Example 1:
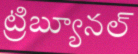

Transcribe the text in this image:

ట్రిబ్యూనల్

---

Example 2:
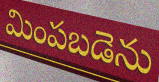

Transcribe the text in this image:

మింపబడెను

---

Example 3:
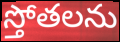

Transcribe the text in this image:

స్తోతలను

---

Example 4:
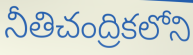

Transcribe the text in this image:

నీతిచంద్రికలోని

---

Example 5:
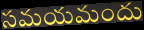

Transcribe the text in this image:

సమయమందు